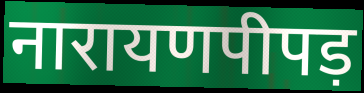
नारायणपीपड़